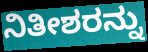
ನಿತೀಶರನ್ನು